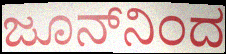
ಜೂನ್‌ನಿಂದ